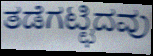
ತಡೆಗಟ್ಟಿದವು